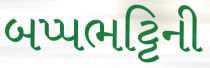
બપ્પભટ્ટિની